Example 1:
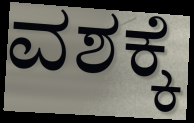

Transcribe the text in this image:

ವಶಕ್ಕೆ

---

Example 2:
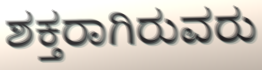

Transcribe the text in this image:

ಶಕ್ತರಾಗಿರುವರು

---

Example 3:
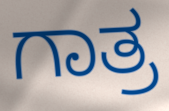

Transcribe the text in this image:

ಗಾತ್ರ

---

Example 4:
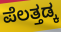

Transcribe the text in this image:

ಪೆಲತ್ತಡ್ಕ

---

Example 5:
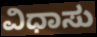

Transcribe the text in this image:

ವಿಧಾಸು